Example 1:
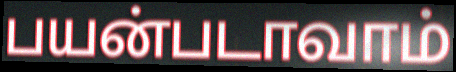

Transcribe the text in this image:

பயன்படாவாம்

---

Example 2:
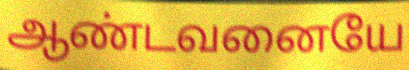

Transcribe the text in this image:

ஆண்டவனையே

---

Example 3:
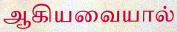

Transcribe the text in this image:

ஆகியவையால்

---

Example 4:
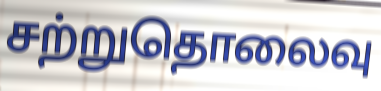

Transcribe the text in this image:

சற்றுதொலைவு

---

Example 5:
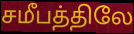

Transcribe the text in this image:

சமீபத்திலே